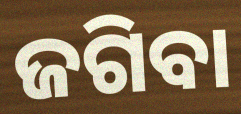
ଜଗିବା